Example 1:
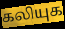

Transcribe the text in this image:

கலியுக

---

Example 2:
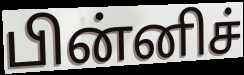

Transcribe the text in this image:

பின்னிச்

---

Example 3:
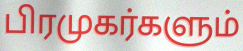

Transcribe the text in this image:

பிரமுகர்களும்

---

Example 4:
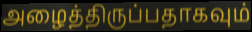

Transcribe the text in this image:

அழைத்திருப்பதாகவும்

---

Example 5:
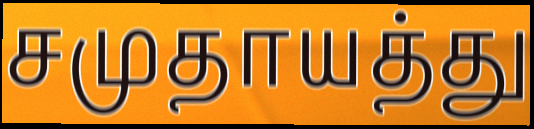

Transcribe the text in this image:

சமுதாயத்து